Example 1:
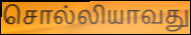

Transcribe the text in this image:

சொல்லியாவது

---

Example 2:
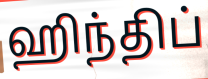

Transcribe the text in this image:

ஹிந்திப்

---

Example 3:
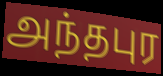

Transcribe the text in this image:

அந்தபுர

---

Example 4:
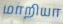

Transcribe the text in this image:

மாறியா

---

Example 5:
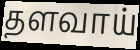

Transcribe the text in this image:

தளவாய்